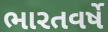
ભારતવર્ષે